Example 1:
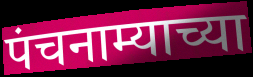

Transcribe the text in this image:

पंचनाम्याच्या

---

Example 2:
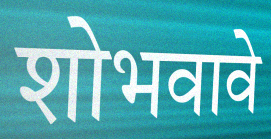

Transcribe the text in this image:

शोभवावे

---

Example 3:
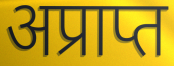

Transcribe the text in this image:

अप्राप्त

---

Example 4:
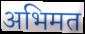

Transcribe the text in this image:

अभिमत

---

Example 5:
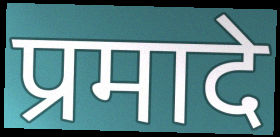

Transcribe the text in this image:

प्रमादे